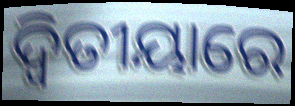
ଦ୍ଵିତୀୟାରେ